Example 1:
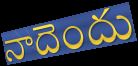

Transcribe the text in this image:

నాదెందు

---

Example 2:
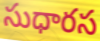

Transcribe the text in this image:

సుధారస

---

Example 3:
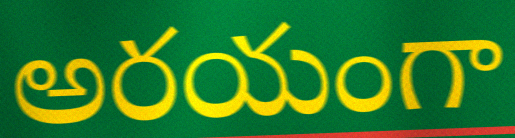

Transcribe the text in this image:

అరయంగా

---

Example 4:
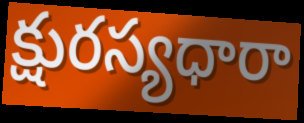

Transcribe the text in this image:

క్షురస్యధారా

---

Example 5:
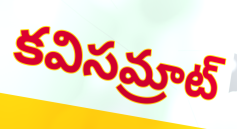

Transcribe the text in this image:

కవిసమ్రాట్